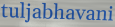
tuljabhavani